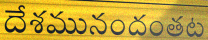
దేశమునందంతట